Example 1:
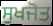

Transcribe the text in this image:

ਸੁਖਜੋਤ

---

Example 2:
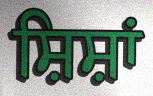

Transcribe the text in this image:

ਸ਼ਿਸ਼ਾਂ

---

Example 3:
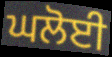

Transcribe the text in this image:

ਘਲੋਈ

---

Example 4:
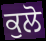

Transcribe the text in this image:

ਕੁਲੋ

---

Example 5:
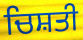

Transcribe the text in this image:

ਚਿਸ਼ਤੀ